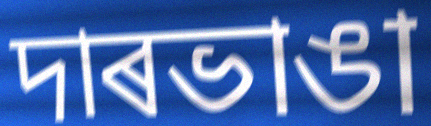
দাৰভাঙা